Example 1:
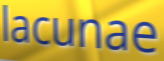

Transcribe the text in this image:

lacunae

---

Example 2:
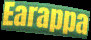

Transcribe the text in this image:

Earappa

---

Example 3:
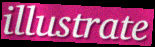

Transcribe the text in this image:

illustrate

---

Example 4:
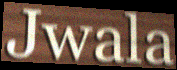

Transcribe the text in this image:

Jwala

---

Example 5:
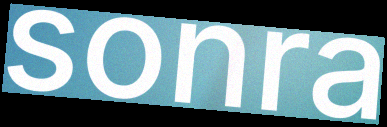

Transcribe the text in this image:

sonra